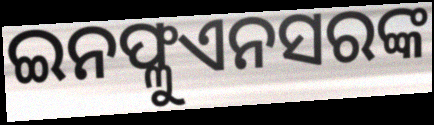
ଇନଫ୍ଳୁଏନସରଙ୍କ